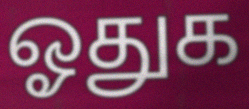
ஓதுக